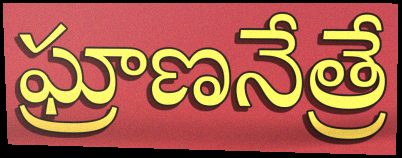
ఘ్రాణనేత్రే